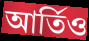
আর্তিও